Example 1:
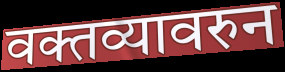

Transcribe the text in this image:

वक्तव्यावरुन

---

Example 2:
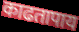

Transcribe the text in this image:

काढतापाय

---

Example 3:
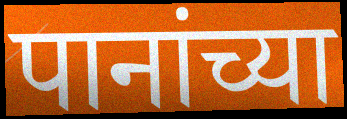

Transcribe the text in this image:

पानांच्या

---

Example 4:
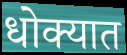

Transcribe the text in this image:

धोक्यात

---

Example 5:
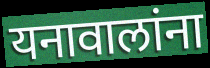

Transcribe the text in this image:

यनावालांना